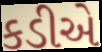
કડીએ